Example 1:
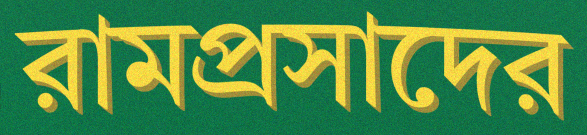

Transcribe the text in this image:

রামপ্রসাদের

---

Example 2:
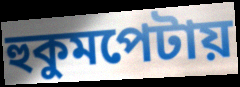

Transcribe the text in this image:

হুকুমপেটায়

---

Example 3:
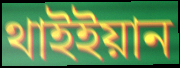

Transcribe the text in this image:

থাইইয়ান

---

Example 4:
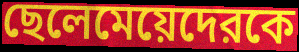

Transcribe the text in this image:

ছেলেমেয়েদেরকে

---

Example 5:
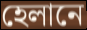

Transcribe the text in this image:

হেলানে